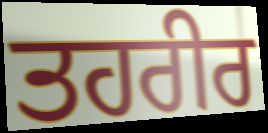
ਤਹਰੀਰ